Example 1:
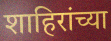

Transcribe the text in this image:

शाहिरांच्या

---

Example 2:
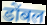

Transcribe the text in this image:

डोंबल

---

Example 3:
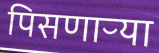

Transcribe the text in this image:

पिसणाऱ्या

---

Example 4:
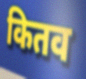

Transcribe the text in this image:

कितव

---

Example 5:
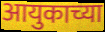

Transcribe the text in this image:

आयुकाच्या